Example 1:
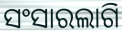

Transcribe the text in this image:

ସଂସାରଲାଗି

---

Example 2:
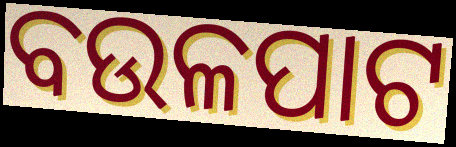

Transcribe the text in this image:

ବଉଳପାଟ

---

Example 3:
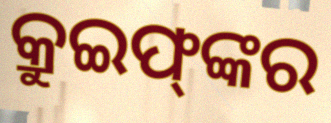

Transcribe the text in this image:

କ୍ରୁଇଫ୍‌ଙ୍କର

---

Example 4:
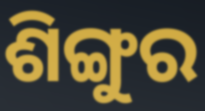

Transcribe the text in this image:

ଶିଙ୍ଗୁର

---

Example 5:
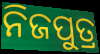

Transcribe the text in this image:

ନିଜପୁତ୍ର